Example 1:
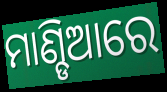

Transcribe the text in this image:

ମାଣ୍ଡିଆରେ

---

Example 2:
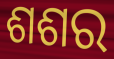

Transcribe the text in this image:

ଶଶର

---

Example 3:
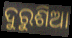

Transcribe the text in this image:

ଦୁରୁଶିଆ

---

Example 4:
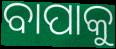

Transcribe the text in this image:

ବାପାକୁ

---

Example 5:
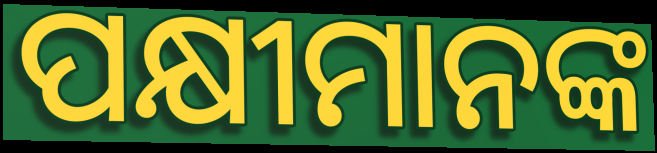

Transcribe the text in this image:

ପକ୍ଷୀମାନଙ୍କ